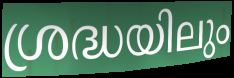
ശ്രദ്ധയിലും